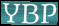
YBP